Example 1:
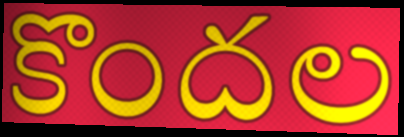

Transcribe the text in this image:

కొందల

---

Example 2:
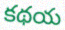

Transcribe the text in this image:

కథయ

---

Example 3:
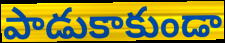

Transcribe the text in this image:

పాడుకాకుండా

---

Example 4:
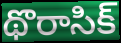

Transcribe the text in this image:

థొరాసిక్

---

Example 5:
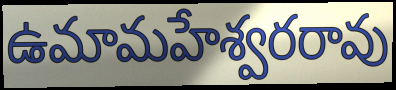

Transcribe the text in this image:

ఉమామహేశ్వరరావు